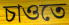
চাওতে